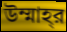
উম্মাহ্‌র